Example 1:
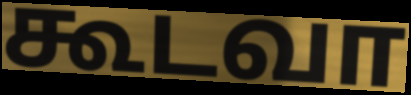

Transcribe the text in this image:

கூடவா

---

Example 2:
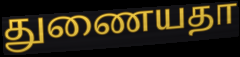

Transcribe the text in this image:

துணையதா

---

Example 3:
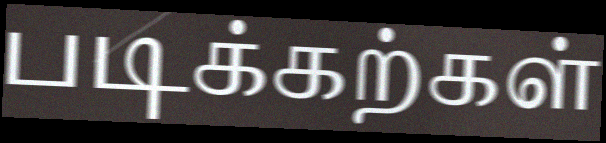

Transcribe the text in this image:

படிக்கற்கள்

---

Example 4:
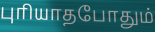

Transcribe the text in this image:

புரியாதபோதும்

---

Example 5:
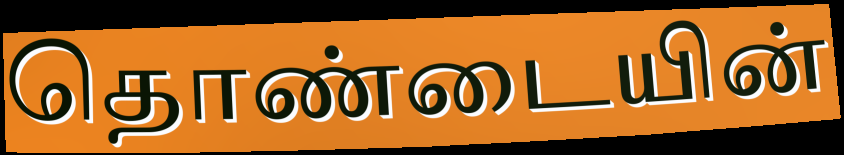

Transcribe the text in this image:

தொண்டையின்